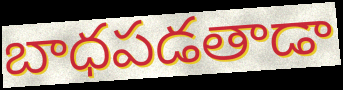
బాధపడతాడా